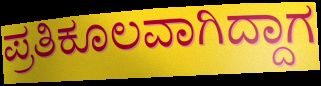
ಪ್ರತಿಕೂಲವಾಗಿದ್ದಾಗ